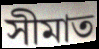
সীমাত